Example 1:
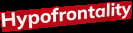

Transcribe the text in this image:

Hypofrontality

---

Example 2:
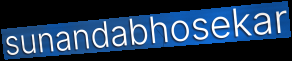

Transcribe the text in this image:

sunandabhosekar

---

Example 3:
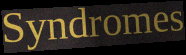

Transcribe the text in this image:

Syndromes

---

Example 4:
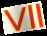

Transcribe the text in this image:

Vll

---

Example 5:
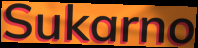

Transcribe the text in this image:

Sukarno